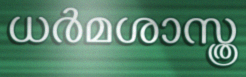
ധർമശാസ്ത്ര